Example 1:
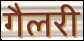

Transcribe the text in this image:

गैलरी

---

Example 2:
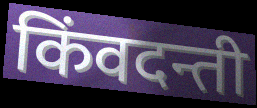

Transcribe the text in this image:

किंवदन्ती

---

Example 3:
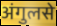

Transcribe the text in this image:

अंगुलसे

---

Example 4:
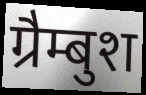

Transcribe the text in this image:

ग्रैम्बुश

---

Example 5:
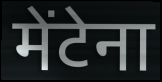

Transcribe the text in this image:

मेंटेना